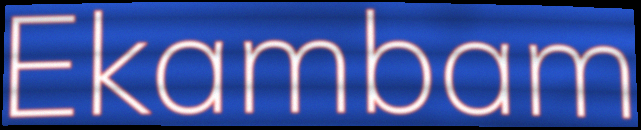
Ekambam